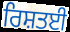
ਰਿਸ਼ਤਈ